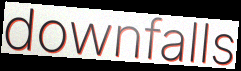
downfalls